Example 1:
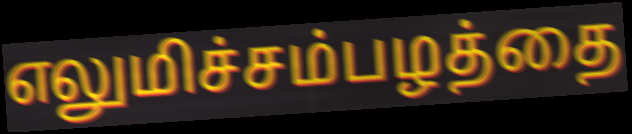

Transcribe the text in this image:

எலுமிச்சம்பழத்தை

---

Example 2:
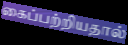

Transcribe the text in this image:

கைப்பற்றியதால்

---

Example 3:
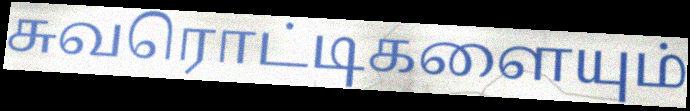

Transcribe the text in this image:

சுவரொட்டிகளையும்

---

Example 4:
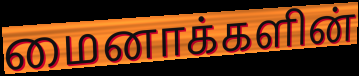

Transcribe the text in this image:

மைனாக்களின்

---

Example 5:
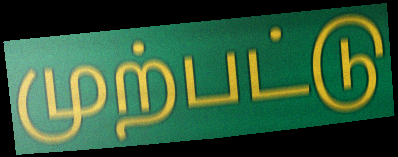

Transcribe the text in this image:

முற்பட்டு